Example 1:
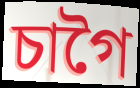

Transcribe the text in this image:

চাগৈ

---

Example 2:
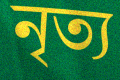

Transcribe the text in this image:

নৃত্য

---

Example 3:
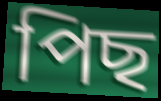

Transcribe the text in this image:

পিছ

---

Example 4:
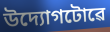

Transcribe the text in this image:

উদ্যোগটোৱে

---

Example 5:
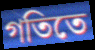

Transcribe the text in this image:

গতিতে